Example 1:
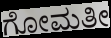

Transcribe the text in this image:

ಗೋಮತೀ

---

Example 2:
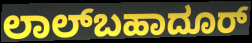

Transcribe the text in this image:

ಲಾಲ್‌ಬಹಾದೂರ್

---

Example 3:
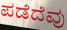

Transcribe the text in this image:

ಪಡೆದೆವು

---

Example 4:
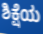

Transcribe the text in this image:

ಶಿಕ್ಷೆಯ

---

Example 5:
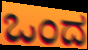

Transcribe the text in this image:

ಒಂದ